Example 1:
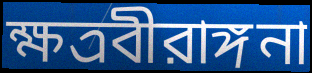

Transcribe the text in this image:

ক্ষত্রবীরাঙ্গনা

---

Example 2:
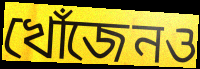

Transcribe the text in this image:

খোঁজেনও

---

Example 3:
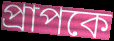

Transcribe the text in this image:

প্রাপকে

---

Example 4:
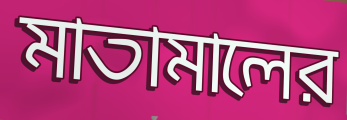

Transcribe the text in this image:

মাতামালের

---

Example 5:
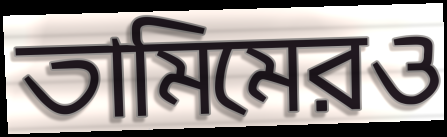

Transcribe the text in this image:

তামিমেরও